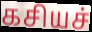
கசியச்